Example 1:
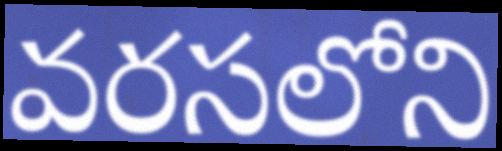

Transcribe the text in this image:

వరసలోని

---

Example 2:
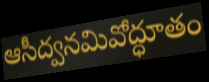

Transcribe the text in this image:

ఆసీద్వనమివోద్ధూతం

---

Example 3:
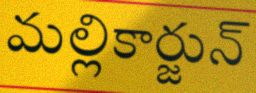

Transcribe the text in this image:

మల్లికార్జున్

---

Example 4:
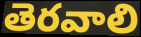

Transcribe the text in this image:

తెరవాలి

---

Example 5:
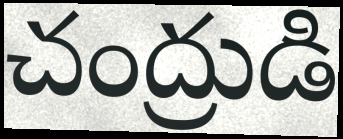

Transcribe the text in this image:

చంద్రుడి